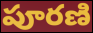
పూరణి